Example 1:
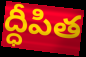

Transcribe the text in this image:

ద్ధీపిత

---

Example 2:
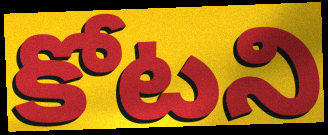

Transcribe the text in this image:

కోటని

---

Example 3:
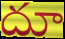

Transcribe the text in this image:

దూ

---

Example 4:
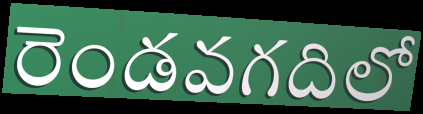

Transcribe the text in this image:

రెండవగదిలో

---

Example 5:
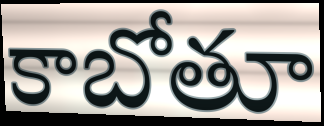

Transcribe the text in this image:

కాబోతూ